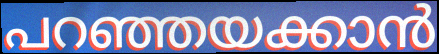
പറഞ്ഞയക്കാൻ